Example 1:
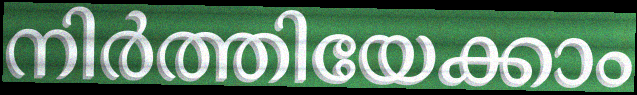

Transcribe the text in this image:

നിർത്തിയേക്കാം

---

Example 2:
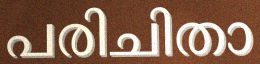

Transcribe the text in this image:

പരിചിതാ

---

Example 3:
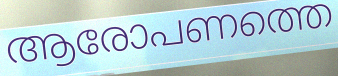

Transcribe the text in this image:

ആരോപണത്തെ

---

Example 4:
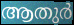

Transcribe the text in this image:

ആതുർ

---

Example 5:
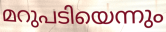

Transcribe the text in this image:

മറുപടിയെന്നും